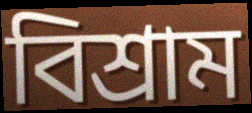
বিশ্রাম